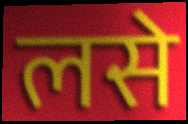
लसे